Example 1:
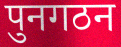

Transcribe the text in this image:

पुनगठन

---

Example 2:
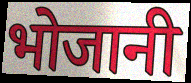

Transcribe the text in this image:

भोजानी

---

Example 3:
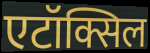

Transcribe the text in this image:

एटॉक्सिल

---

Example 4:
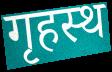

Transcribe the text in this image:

गृहस्थ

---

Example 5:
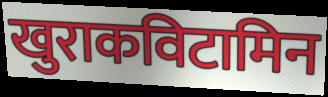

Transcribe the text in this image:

खुराकविटामिन